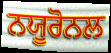
ਨਯੂਰੋਨਲ